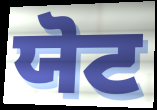
ਯੋਟ